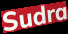
Sudra